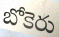
బోకెరు